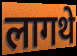
लागथे